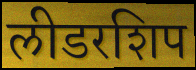
लीडरशिप